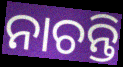
ନାଚନ୍ତି